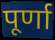
पूर्णा